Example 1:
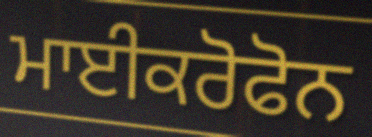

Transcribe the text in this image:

ਮਾਈਕਰੋਫੋਨ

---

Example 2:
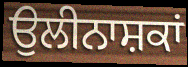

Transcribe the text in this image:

ਉਲੀਨਾਸ਼ਕਾਂ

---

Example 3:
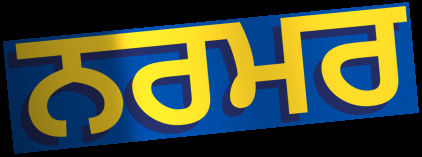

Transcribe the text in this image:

ਨਰਮਰ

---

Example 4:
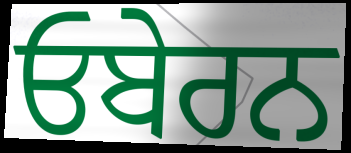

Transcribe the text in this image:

ਓਬੇਰਨ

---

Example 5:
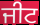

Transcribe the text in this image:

ਜੀਟ